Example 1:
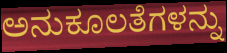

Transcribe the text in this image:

ಅನುಕೂಲತೆಗಳನ್ನು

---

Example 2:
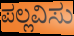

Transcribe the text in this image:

ಪಲ್ಲವಿಸು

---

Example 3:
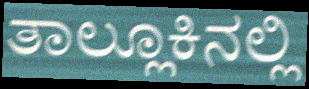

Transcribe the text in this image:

ತಾಲ್ಲೂಕಿನಲ್ಲಿ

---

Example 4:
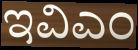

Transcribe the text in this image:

ಇವಿಎಂ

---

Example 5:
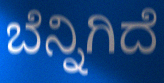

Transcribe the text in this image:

ಬೆನ್ನಿಗಿದೆ